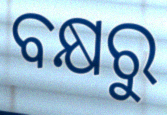
ବକ୍ଷରୁ